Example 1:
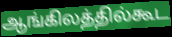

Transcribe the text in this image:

ஆங்கிலத்தில்கூட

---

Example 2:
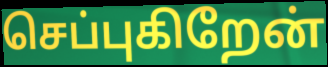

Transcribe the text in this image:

செப்புகிறேன்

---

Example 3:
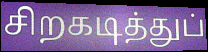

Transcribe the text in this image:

சிறகடித்துப்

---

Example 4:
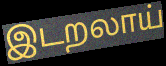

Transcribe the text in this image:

இடறலாய்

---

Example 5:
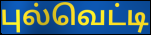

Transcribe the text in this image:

புல்வெட்டி